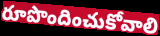
రూపొందించుకోవాలి